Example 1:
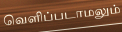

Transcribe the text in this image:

வெளிப்படாமலும்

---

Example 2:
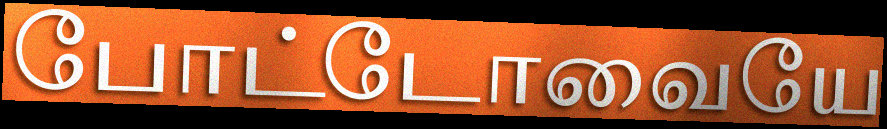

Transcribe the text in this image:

போட்டோவையே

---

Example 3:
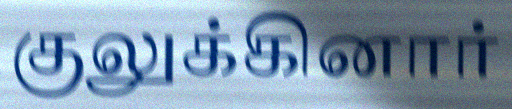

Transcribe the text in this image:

குலுக்கினார்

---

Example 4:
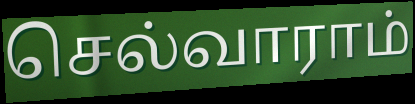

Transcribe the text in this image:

செல்வாராம்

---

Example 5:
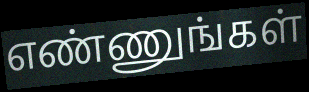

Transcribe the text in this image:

எண்ணுங்கள்